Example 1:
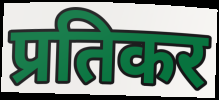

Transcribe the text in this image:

प्रतिकर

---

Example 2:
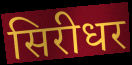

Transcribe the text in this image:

सिरीधर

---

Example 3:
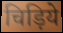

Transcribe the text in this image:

चिड़िये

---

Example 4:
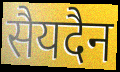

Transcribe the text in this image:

सैयदैन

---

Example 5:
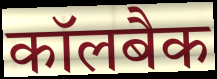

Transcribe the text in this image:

कॉलबैक